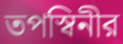
তপস্বিনীর